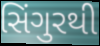
સિંગુરથી